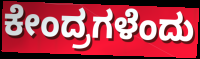
ಕೇಂದ್ರಗಳೆಂದು